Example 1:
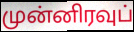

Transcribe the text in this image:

முன்னிரவுப்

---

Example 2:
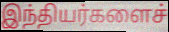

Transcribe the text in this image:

இந்தியர்களைச்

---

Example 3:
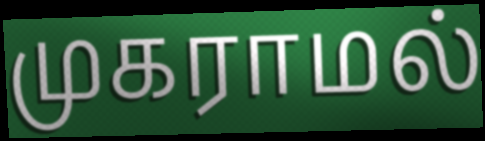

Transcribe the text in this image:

முகராமல்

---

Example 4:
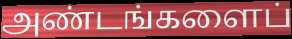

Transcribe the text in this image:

அண்டங்களைப்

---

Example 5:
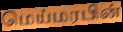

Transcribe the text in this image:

மெய்மரபின்